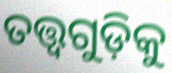
ତତ୍ତ୍ୱଗୁଡ଼ିକୁ